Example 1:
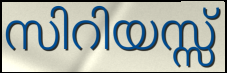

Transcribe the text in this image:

സിറിയസ്സ്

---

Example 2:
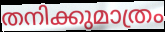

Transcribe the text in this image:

തനിക്കുമാത്രം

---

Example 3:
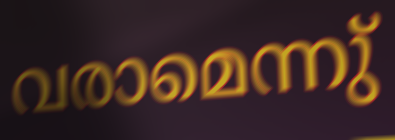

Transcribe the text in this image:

വരാമെന്നു്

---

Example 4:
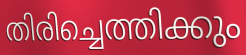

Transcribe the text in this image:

തിരിച്ചെത്തിക്കും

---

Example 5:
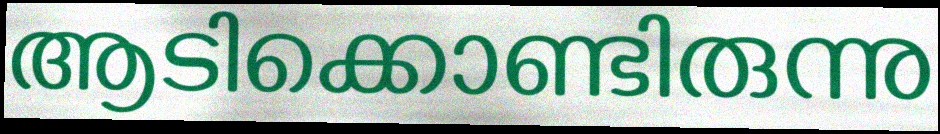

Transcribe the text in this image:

ആടിക്കൊണ്ടിരുന്നു